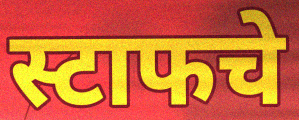
स्टाफचे